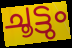
ചൂട്ടും